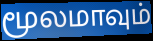
மூலமாவும்